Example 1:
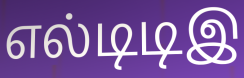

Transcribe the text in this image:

எல்டிடிஇ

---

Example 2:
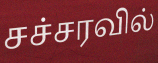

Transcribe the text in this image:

சச்சரவில்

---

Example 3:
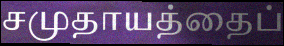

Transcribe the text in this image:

சமுதாயத்தைப்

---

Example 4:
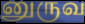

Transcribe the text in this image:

னுருவ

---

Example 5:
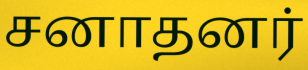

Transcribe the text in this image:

சனாதனர்